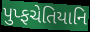
પુપ્ફચેતિયાનિ